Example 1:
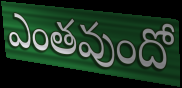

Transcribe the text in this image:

ఎంతవుందో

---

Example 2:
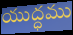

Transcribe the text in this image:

యుద్ధము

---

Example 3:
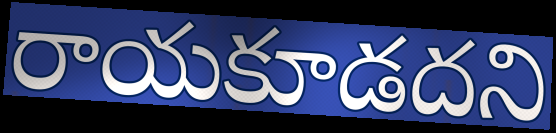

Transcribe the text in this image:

రాయకూడదని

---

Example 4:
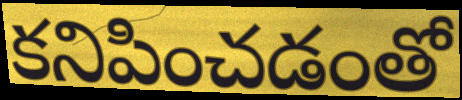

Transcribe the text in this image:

కనిపించడంతో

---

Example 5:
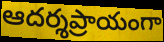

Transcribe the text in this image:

ఆదర్శప్రాయంగా